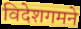
विदेशगमने